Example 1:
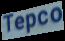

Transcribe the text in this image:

Tepco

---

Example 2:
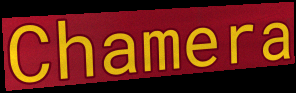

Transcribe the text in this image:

Chamera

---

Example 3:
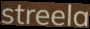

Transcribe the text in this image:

streela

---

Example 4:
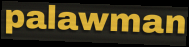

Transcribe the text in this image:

palawman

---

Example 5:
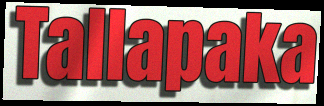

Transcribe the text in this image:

Tallapaka